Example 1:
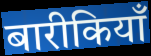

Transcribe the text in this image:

बारीकियाँ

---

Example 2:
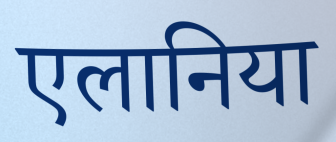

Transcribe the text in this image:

एलानिया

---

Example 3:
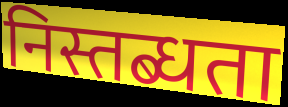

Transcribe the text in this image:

निस्तब्धता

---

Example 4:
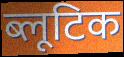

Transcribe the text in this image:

ब्लूटिक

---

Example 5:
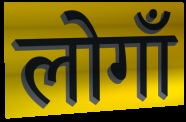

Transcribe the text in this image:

लोगाँ